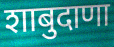
शाबुदाणा